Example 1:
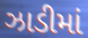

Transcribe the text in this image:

ઝાડીમાં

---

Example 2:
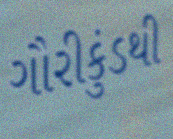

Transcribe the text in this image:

ગૌરીકુંડથી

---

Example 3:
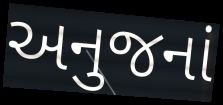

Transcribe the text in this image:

અનુજનાં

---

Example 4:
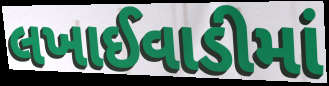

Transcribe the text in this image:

લખાઈવાડીમાં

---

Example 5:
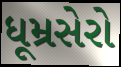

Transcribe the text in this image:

ધૂમ્રસેરો